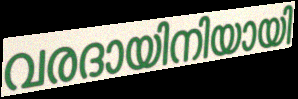
വരദായിനിയായി